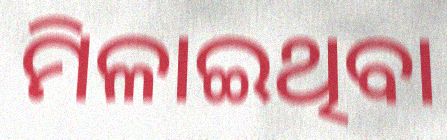
ମିଳାଇଥିବା